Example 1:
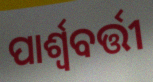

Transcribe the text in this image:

ପାର୍ଶ୍ୱବର୍ତ୍ତୀ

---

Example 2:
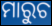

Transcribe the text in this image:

ମାରୁଚ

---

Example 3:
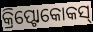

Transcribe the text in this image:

କ୍ରିପ୍ଟୋକୋକସ୍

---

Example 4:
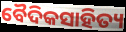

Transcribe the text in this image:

ବୈଦିକସାହିତ୍ୟ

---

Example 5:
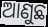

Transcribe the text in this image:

ଆଣୁଛ